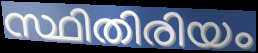
സ്ഥിതിരിയം